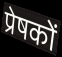
प्रेषकों